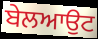
ਬੇਲਆਉਟ